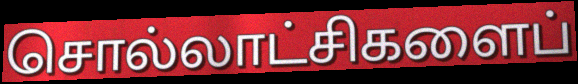
சொல்லாட்சிகளைப்